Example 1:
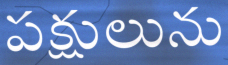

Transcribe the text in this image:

పక్షులును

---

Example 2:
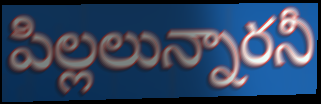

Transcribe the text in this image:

పిల్లలున్నారనీ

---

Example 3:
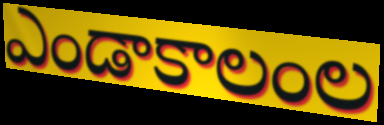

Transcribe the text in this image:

ఎండాకాలంల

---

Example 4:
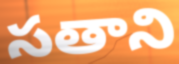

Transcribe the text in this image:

సతాని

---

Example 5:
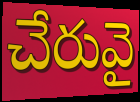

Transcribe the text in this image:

చేరువై